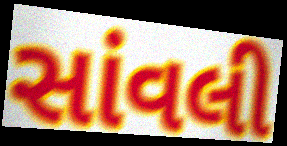
સાંવલી